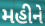
મહીને